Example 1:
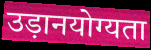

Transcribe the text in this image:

उड़ानयोग्यता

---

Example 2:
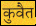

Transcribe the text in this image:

कुवैत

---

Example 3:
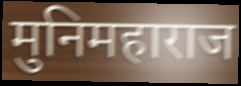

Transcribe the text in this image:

मुनिमहाराज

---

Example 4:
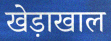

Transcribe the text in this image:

खेड़ाखाल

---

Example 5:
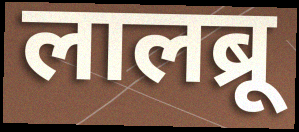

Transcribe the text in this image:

लालब्रू